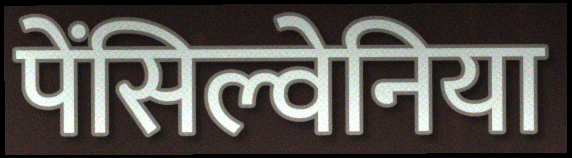
पेंसिल्वेनिया